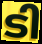
ടി